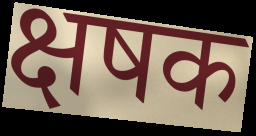
क्षषक